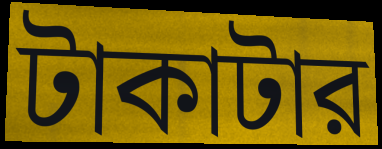
টাকাটার